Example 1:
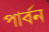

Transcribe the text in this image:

পার্বন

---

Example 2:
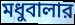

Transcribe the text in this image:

মধুবালার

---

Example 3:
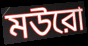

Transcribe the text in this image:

মউরো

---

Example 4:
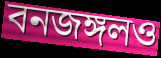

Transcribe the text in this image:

বনজঙ্গলও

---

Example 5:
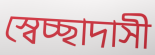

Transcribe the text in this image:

স্বেচ্ছাদাসী